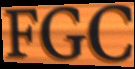
FGC